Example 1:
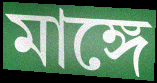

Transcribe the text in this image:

মাঙ্গে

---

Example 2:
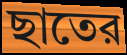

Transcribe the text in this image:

ছাতের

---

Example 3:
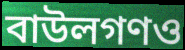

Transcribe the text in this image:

বাউলগণও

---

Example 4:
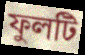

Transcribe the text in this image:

ফুলটি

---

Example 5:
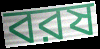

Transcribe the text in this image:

বরষ